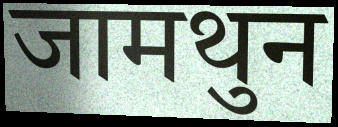
जामथुन